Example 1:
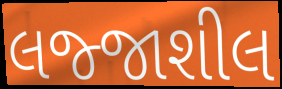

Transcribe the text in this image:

લજ્જાશીલ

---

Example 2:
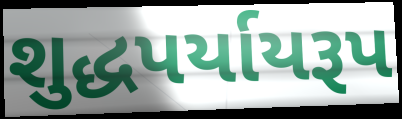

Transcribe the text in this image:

શુદ્ધપર્યાયરૂપ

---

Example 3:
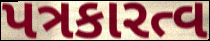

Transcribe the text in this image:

પત્રકારત્વ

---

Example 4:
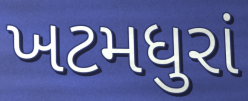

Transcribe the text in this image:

ખટમધુરાં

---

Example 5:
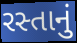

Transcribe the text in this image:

રસ્તાનું